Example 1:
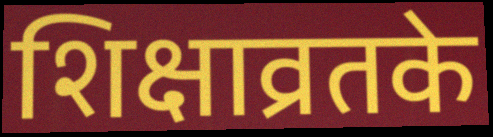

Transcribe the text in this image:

शिक्षाव्रतके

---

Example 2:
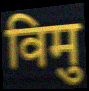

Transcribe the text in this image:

विमु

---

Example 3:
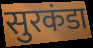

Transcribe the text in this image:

सुरकंडा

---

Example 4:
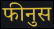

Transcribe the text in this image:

फीनुस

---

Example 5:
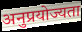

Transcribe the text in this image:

अनुप्रयोज्यता